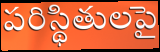
పరిస్థితులపై